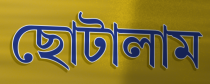
ছোটালাম